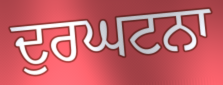
ਦੁਰਘਟਨਾ